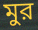
মুর